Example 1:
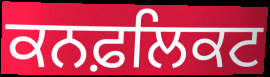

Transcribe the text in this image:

ਕਨਫ਼ਲਿਕਟ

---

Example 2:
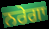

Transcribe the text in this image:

ਨਰੇਗਾ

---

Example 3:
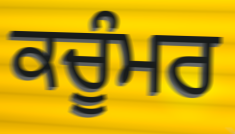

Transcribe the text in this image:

ਕਚੂੰਮਰ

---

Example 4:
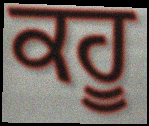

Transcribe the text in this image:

ਕਹੂ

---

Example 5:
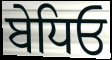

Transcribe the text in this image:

ਬੇਧਿਓ